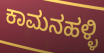
ಕಾಮನಹಳ್ಳಿ